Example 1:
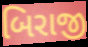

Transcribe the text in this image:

બિરાજી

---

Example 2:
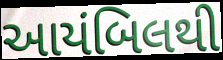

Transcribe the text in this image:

આયંબિલથી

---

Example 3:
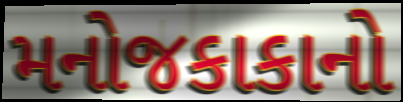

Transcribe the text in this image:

મનોજકાકાનો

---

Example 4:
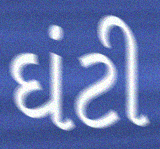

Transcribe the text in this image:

ઘંટી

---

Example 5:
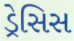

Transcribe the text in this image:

ડ્રેસિસ